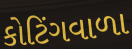
કોટિંગવાળા